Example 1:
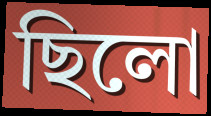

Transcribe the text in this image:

ছিলো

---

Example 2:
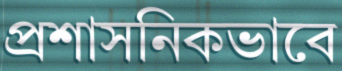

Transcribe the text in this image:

প্রশাসনিকভাবে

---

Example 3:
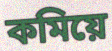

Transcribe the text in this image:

কমিয়ে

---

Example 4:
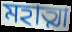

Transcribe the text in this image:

মহাত্মা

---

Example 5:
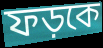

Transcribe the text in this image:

ফড়কে